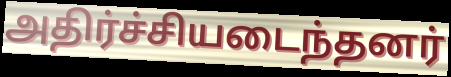
அதிர்ச்சியடைந்தனர்